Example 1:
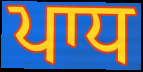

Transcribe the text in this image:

ਪਾਧ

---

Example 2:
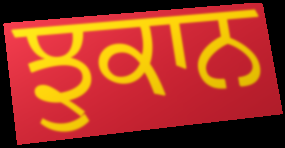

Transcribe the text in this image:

ਝੁਕਾਨ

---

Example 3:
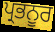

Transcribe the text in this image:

ਪ੍ਰਭਨੂਰ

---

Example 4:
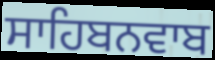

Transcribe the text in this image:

ਸਾਹਿਬਨਵਾਬ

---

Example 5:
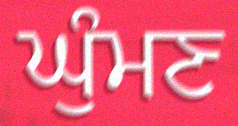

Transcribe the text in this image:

ਘੁੰਮਣ